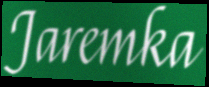
Jaremka